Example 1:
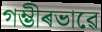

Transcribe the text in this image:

গম্ভীৰভাৱে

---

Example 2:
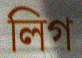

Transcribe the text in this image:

লিগ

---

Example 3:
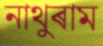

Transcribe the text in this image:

নাথুৰাম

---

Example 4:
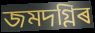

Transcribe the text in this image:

জমদগ্নিৰ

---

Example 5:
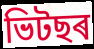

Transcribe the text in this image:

ভিটছৰ